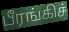
பீரங்கிச்